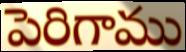
పెరిగాము